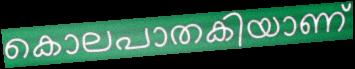
കൊലപാതകിയാണ്